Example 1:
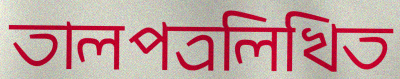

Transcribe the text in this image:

তালপত্রলিখিত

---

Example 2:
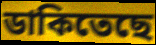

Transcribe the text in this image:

ডাকিতেছে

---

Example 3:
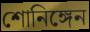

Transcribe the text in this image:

শোনিঙ্গেন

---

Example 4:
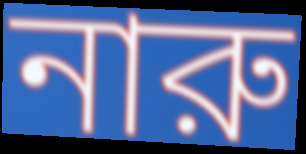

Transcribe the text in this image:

নারু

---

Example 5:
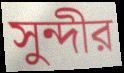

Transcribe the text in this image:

সুন্দীর